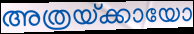
അത്രയ്‌ക്കായോ